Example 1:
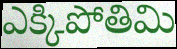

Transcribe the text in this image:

ఎక్కిపోతిమి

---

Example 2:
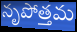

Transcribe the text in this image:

నృపోత్తమ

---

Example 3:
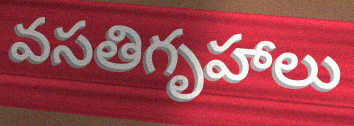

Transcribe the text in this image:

వసతిగృహాలు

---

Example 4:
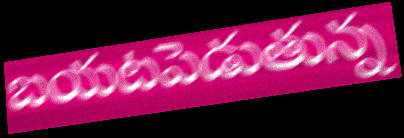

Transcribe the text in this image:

బయటపెడుతున్న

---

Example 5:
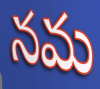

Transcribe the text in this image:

నమ